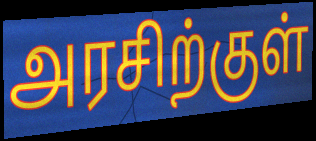
அரசிற்குள்